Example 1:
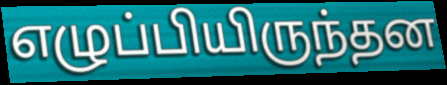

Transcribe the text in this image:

எழுப்பியிருந்தன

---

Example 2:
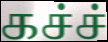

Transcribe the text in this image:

கச்ச்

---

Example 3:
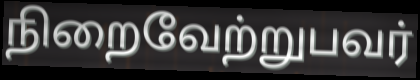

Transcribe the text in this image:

நிறைவேற்றுபவர்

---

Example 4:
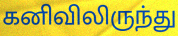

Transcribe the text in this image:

கனிவிலிருந்து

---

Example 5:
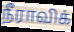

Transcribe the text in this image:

நீராவிக்